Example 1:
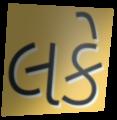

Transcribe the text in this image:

લકે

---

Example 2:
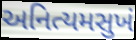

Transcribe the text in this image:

અનિત્યમસુખં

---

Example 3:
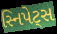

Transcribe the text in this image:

સ્નિપેટ્સ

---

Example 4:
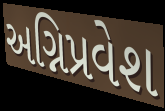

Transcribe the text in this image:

અગ્નિપ્રવેશ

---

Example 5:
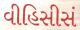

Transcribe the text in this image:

વીહિસીસં